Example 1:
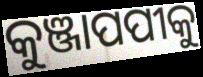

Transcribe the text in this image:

କୁଞ୍ଜାପପୀକୁ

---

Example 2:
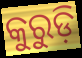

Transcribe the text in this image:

କୁରୁଡ଼ି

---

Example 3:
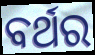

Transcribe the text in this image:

ବର୍ଥର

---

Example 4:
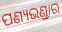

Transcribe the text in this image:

ପଣ୍ୟଭଣ୍ଡାର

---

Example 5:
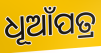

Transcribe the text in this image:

ଧୂଆଁପତ୍ର